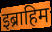
इब्राहिम